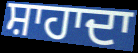
ਸ਼ਾਹਾਦਾ